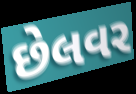
છેલવર